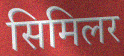
सिमिलर